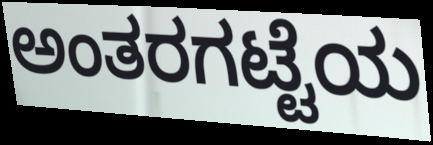
ಅಂತರಗಟ್ಟೆಯ